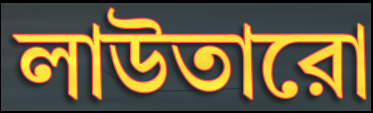
লাউতারো